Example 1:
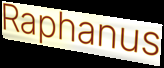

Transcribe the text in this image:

Raphanus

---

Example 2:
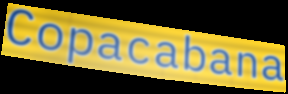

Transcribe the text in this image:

Copacabana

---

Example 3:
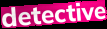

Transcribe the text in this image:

detective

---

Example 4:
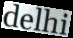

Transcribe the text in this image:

delhi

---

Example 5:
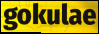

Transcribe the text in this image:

gokulae